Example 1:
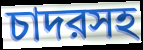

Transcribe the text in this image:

চাদরসহ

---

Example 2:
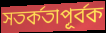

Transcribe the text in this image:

সতর্কতাপূর্বক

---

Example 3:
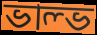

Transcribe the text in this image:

ভাল্ভ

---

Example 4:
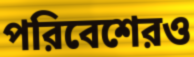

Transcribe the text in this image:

পরিবেশেরও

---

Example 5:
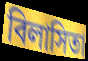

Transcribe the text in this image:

বিলাসিতা